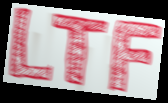
LTF